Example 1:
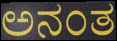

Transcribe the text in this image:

ಅನಂತ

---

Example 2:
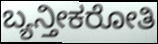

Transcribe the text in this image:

ಬ್ಯನ್ತೀಕರೋತಿ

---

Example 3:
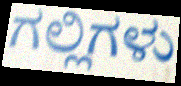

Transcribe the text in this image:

ಗಲ್ಲಿಗಳು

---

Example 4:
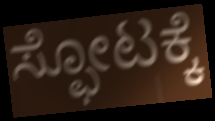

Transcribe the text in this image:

ಸ್ಫೋಟಕ್ಕೆ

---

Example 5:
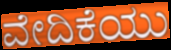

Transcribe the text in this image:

ವೇದಿಕೆಯು